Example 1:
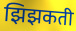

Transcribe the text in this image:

झिझकती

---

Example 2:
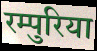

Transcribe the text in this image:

रम्पुरिया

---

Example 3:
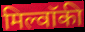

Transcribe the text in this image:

मिल्वॉकी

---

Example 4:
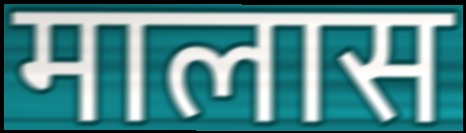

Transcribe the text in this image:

मालास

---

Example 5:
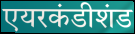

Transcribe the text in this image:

एयरकंडीशंड